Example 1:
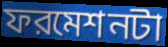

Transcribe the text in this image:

ফরমেশনটা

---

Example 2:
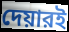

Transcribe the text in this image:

দেয়ারই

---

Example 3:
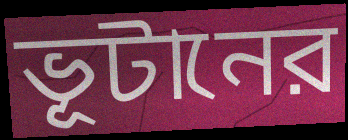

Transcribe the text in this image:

ভূটানের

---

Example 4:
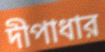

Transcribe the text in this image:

দীপাধার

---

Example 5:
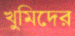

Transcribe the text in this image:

খুমিদের